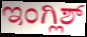
ಇಂಗ್ಲಿಶ್